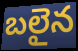
బలైన